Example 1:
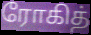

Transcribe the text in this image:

ரோகித்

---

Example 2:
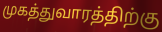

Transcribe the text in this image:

முகத்துவாரத்திற்கு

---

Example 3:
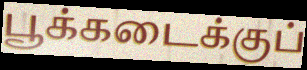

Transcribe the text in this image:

பூக்கடைக்குப்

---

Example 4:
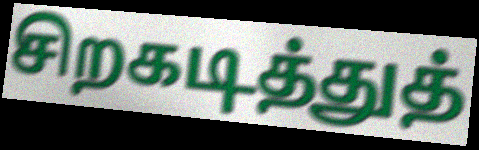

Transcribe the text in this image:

சிறகடித்துத்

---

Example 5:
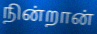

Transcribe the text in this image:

நின்றான்